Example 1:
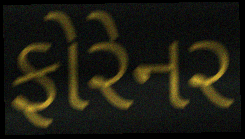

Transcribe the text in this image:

ફોરેનર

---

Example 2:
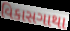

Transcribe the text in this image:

વિકાસગાથા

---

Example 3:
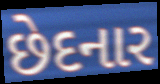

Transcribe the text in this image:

છેદનાર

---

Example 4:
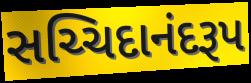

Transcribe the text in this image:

સચ્ચિદાનંદરૂપ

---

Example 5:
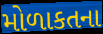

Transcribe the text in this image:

મોળાકતના